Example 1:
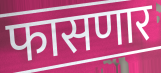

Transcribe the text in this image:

फासणार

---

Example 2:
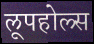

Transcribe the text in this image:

लूपहोल्स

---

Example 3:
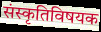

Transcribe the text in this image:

संस्कृतिविषयक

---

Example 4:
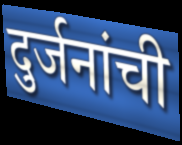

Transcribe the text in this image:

दुर्जनांची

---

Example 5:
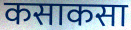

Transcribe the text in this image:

कसाकसा